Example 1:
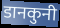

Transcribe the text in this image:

डानकुनी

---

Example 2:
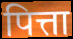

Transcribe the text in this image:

पित्ता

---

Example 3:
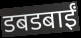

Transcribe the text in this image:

डबडबाईं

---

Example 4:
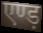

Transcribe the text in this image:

एण्ड़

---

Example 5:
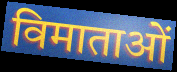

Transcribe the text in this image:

विमाताओं